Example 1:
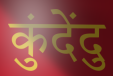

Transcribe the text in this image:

कुंदेंदु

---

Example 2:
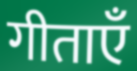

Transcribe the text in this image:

गीताएँ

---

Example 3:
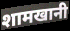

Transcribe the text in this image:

शामखानी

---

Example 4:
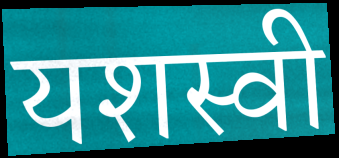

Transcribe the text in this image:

यशस्वी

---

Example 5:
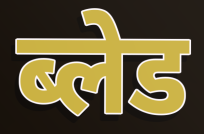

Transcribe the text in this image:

ब्लेड